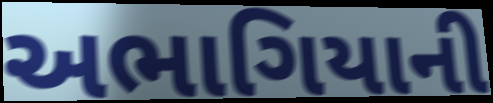
અભાગિયાની